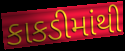
કાકડીમાંથી